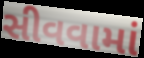
સીવવામાં